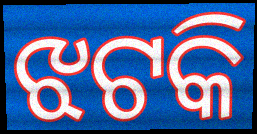
ଝଟକି